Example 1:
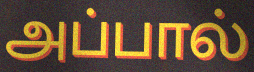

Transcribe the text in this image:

அப்பால்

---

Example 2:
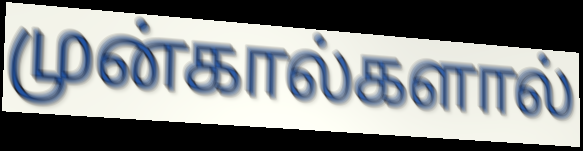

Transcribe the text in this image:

முன்கால்களால்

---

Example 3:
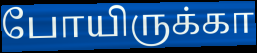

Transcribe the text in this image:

போயிருக்கா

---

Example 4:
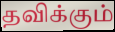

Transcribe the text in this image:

தவிக்கும்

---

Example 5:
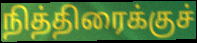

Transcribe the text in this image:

நித்திரைக்குச்